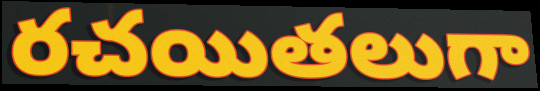
రచయితలుగా